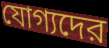
যোগ্যদের